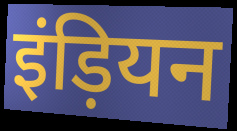
इंड़ियन